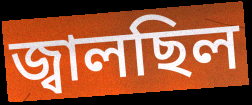
জ্বালছিল